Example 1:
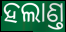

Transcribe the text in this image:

ହଲାଣ୍ତ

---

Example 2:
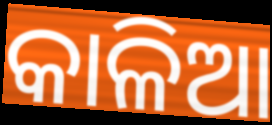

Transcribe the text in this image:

କାଳିଆ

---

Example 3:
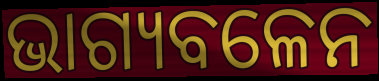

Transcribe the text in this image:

ଭାଗ୍ୟବଳେନ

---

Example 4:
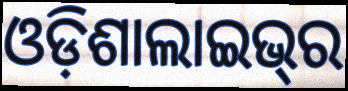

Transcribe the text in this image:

ଓଡ଼ିଶାଲାଇଭ୍‌ର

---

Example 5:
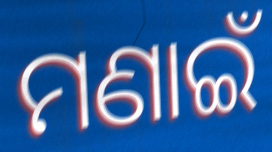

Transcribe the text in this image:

ମଣାଇଁ